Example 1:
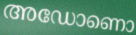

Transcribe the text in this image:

അഡോണൊ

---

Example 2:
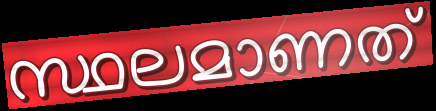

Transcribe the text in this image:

സ്ഥലമാണത്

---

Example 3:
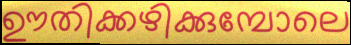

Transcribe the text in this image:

ഊതിക്കഴിക്കുമ്പോലെ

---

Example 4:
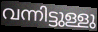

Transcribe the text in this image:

വന്നിട്ടുള്ളു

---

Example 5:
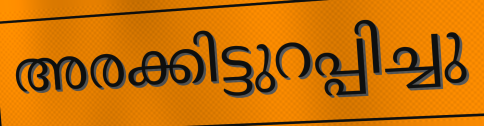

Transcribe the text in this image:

അരക്കിട്ടുറപ്പിച്ചു